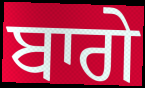
ਬਾਗੇ